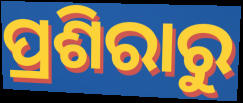
ପ୍ରଶିରାରୁ